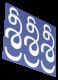
శ్రీశ్రీశ్రీ